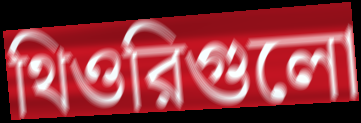
থিওরিগুলো